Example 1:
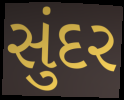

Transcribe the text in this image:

સુંદર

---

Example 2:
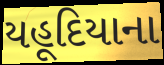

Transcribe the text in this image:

યહૂદિયાના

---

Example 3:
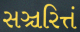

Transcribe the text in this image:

સઞ્ચરિત્તં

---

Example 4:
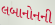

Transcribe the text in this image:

લબાનોનની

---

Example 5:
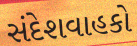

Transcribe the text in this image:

સંદેશવાહકો